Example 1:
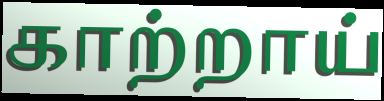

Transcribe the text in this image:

காற்றாய்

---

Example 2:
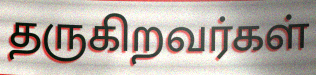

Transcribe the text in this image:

தருகிறவர்கள்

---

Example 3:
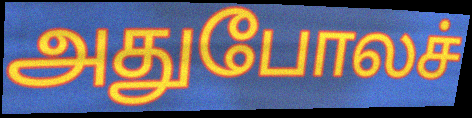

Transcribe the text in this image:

அதுபோலச்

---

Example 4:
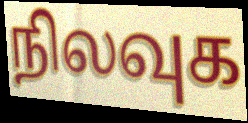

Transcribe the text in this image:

நிலவுக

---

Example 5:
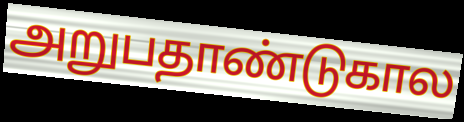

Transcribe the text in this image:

அறுபதாண்டுகால